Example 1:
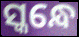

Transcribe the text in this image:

ସ୍କନ୍ଧେ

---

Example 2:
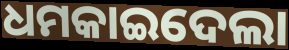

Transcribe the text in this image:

ଧମକାଇଦେଲା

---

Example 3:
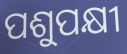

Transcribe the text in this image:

ପଶୁପକ୍ଷୀ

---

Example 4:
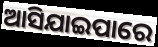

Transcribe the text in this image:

ଆସିଯାଇପାରେ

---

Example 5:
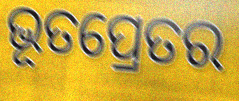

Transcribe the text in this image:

ଭୂତପ୍ରେତର